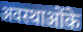
अवस्थाओंके